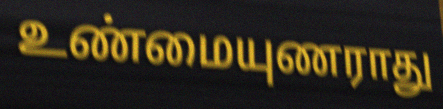
உண்மையுணராது